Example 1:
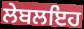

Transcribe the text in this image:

ਲੇਬਲਇਹ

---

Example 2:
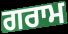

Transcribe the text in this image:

ਗਰਾਮ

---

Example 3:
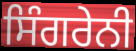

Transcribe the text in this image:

ਸਿੰਗਰੇਨੀ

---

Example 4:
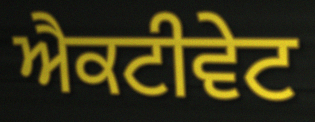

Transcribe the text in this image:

ਐਕਟੀਵੇਟ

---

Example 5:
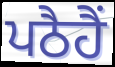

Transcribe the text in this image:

ਪਠੈਹੈਂ